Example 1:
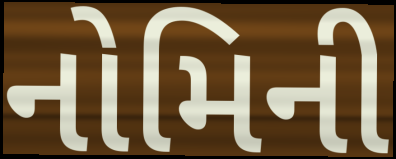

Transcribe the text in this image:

નોમિની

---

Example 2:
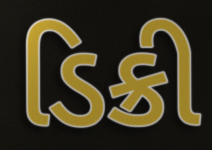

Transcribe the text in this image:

ડિક્રી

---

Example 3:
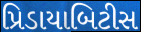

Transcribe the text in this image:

પ્રિડાયાબિટીસ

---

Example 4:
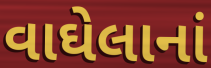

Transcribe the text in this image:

વાઘેલાનાં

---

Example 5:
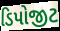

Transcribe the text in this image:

ડિપોજીટ